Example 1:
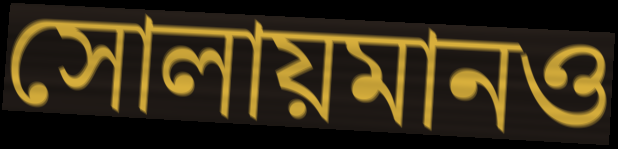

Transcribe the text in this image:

সোলায়মানও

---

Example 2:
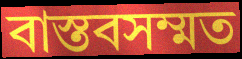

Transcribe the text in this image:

বাস্তবসম্মত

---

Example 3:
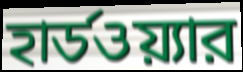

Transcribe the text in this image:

হার্ডওয়্যার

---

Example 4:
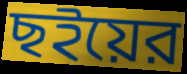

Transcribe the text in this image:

ছইয়ের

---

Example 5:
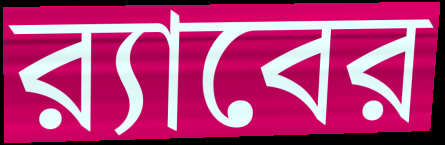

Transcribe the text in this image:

র‍্যাবের